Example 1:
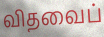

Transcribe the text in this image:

விதவைப்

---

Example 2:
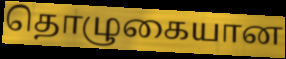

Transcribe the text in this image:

தொழுகையான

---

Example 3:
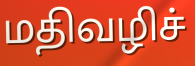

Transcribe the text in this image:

மதிவழிச்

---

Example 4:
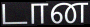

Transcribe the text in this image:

டான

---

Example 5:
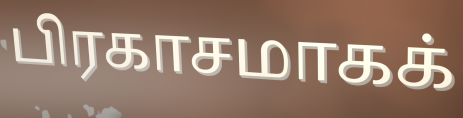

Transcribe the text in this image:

பிரகாசமாகக்